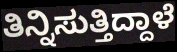
ತಿನ್ನಿಸುತ್ತಿದ್ದಾಳೆ